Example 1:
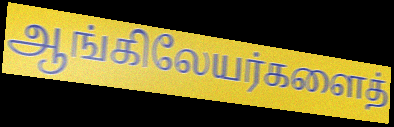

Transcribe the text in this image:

ஆங்கிலேயர்களைத்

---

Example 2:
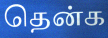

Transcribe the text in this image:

தென்க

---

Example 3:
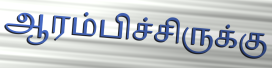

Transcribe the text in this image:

ஆரம்பிச்சிருக்கு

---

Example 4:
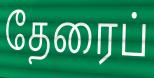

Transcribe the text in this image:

தேரைப்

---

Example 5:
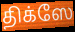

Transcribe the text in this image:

திக்ஸே